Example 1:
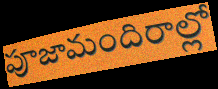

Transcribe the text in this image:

పూజామందిరాల్లో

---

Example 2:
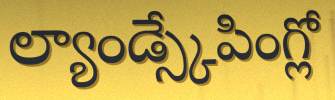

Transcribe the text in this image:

ల్యాండ్స్కేపింగ్లో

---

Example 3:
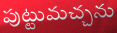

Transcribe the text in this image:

పుట్టుమచ్చను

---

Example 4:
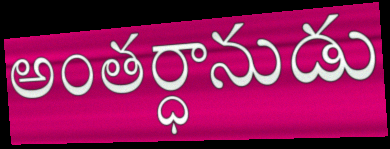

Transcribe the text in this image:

అంతర్ధానుడు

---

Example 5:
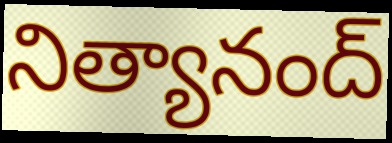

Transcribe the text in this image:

నిత్యానంద్